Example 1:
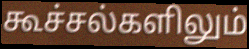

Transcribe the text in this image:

கூச்சல்களிலும்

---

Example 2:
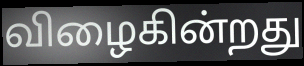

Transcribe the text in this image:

விழைகின்றது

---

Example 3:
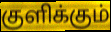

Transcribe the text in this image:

குளிக்கும்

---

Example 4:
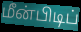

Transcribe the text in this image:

மீன்பிடிப்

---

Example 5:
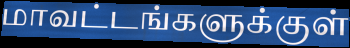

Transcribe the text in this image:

மாவட்டங்களுக்குள்